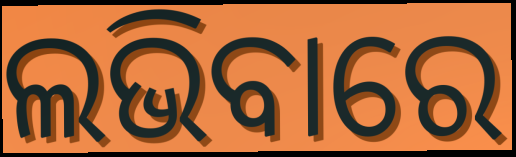
ଲଭିବାରେ